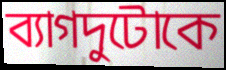
ব্যাগদুটোকে